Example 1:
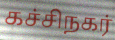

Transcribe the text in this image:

கச்சிநகர்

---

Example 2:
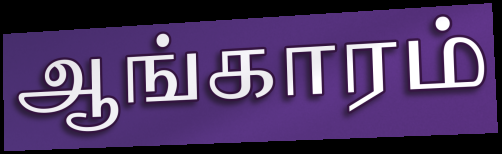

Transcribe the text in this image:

ஆங்காரம்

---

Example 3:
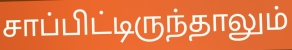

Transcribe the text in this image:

சாப்பிட்டிருந்தாலும்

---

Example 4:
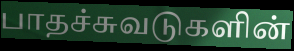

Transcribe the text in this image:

பாதச்சுவடுகளின்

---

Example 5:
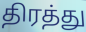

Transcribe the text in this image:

திரத்து